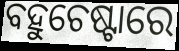
ବହୁଚେଷ୍ଟାରେ